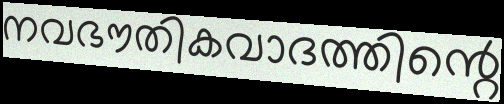
നവഭൗതികവാദത്തിന്റെ